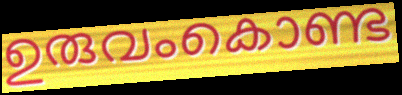
ഉരുവംകൊണ്ട